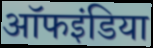
ऑफइंडिया